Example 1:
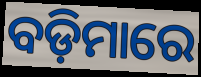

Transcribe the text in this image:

ବଡ଼ିମାରେ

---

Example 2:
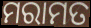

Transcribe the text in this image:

ମରାମତ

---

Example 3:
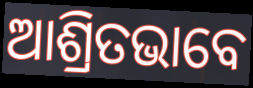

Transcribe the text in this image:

ଆଶ୍ରିତଭାବେ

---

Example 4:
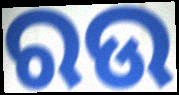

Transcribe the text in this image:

ରଉ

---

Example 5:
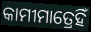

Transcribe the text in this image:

କାମୀମାତ୍ରେହିଁ